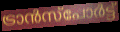
ട്രാൻസ്‌പോർട്ട്